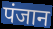
पंजान